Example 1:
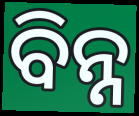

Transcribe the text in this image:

ବିନ୍ନ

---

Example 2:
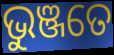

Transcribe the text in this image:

ଭୁଞ୍ଜତେ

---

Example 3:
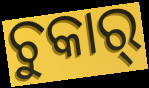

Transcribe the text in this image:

ଚୁକାର୍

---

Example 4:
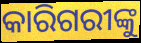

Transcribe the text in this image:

କାରିଗରୀଙ୍କୁ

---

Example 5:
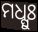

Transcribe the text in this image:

ମଧ୍ସୁଃ